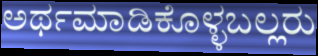
ಅರ್ಥಮಾಡಿಕೊಳ್ಳಬಲ್ಲರು